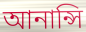
আনান্সি